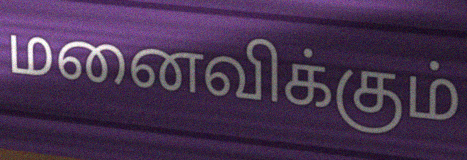
மனைவிக்கும்